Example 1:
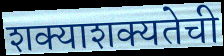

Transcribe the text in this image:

शक्याशक्यतेची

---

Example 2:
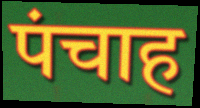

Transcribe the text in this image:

पंचाह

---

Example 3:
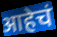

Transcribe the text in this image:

आहेचं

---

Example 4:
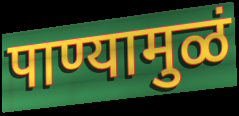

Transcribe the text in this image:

पाण्यामुळं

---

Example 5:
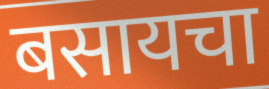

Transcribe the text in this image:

बसायचा